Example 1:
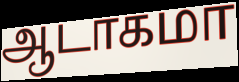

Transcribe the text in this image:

ஆடாகமா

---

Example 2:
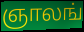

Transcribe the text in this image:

ஞாலங்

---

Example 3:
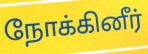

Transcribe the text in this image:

நோக்கினீர்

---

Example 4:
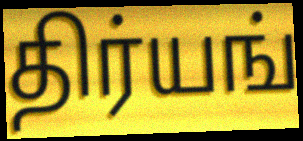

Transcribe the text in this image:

திர்யங்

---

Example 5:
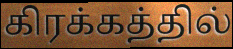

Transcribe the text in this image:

கிரக்கத்தில்